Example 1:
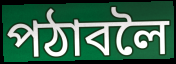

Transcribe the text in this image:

পঠাবলৈ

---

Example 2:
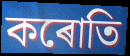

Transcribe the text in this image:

কৰোতি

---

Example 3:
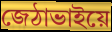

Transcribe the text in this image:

জেঠাভাইয়ে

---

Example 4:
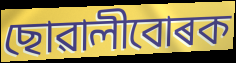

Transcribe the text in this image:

ছোৱালীবোৰক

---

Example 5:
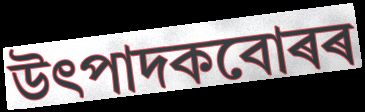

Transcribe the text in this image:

উৎপাদকবোৰৰ